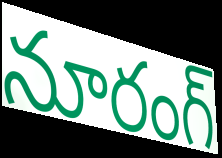
నూరంగ్